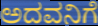
ಅದವನಿಗೆ